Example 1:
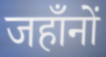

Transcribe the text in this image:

जहाँनों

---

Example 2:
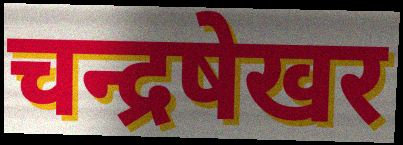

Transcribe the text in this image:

चन्द्रषेखर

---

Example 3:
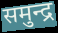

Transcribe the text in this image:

समुन्द्र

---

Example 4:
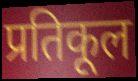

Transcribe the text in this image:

प्रतिकूल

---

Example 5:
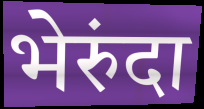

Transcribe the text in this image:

भेरुंदा